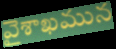
వైశాఖమున